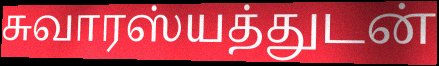
சுவாரஸ்யத்துடன்